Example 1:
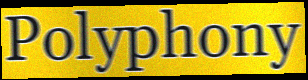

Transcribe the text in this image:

Polyphony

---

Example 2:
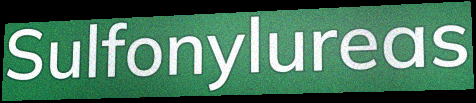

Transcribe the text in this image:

Sulfonylureas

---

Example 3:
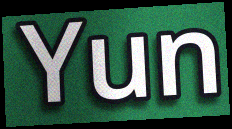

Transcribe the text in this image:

Yun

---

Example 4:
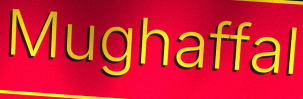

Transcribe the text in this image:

Mughaffal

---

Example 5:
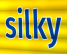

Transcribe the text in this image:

silky